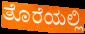
ತೊರೆಯಲ್ಲಿ